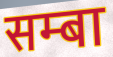
सम्बा